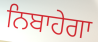
ਨਿਬਾਹੇਗਾ